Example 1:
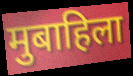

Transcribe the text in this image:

मुबाहिला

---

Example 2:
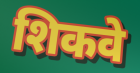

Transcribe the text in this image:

शिकवे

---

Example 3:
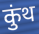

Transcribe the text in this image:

कुंथ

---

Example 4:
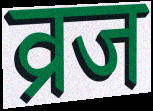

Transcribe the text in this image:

व्रज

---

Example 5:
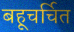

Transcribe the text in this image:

बहूचर्चित